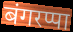
बंगरप्पा